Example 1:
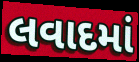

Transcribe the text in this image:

લવાદમાં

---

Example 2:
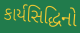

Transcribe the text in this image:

કાર્યસિદ્ધિનો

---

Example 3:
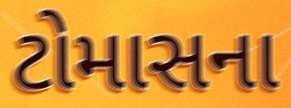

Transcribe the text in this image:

ટોમાસના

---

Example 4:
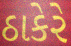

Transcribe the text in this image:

ઠાકેરે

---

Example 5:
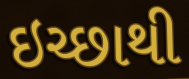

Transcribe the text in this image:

ઇચ્છાથી